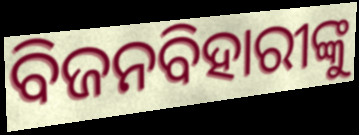
ବିଜନବିହାରୀଙ୍କୁ